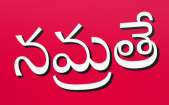
నమ్రతే